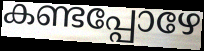
കണ്ടപ്പോഴേ